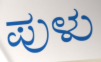
ಪುಳು